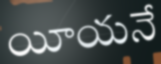
యీయనే